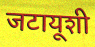
जटायूशी